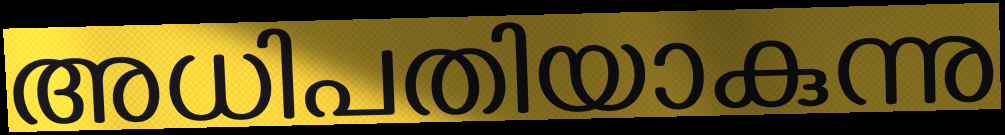
അധിപതിയാകുന്നു